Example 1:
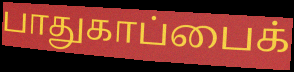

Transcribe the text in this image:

பாதுகாப்பைக்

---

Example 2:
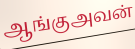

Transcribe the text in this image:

ஆங்குஅவன்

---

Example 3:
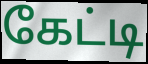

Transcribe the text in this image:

கேட்டி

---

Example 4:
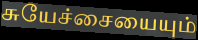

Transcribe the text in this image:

சுயேச்சையையும்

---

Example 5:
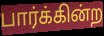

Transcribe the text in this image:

பார்க்கின்ற